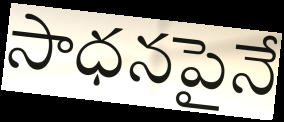
సాధనపైనే